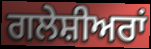
ਗਲੇਸ਼ੀਅਰਾਂ